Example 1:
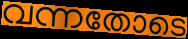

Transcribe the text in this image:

വന്നതോടെ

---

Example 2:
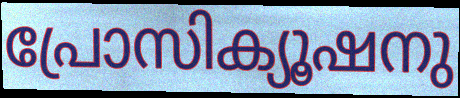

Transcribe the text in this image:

പ്രോസിക്യൂഷനു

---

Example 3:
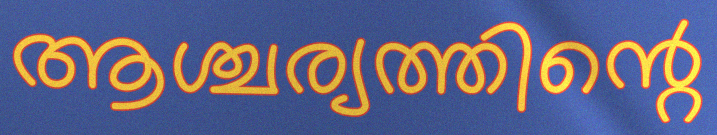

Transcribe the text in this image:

ആശ്ചര്യത്തിന്റെ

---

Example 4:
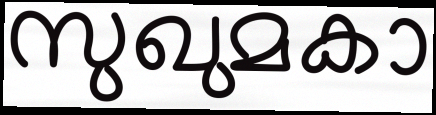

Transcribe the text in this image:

സുഖുമകാ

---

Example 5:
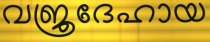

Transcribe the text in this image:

വജ്രദേഹായ